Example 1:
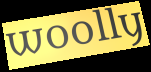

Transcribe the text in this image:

woolly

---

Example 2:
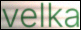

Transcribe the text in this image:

velka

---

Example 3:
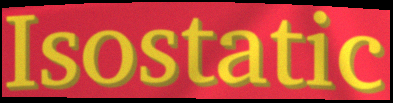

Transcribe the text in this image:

Isostatic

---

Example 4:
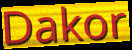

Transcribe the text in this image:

Dakor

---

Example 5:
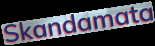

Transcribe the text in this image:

Skandamata